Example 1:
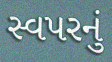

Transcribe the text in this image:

સ્વપરનું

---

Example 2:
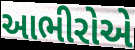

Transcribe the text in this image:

આભીરોએ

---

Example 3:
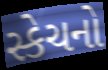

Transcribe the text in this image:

સ્કેચનો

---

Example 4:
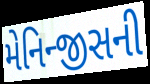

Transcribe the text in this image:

મેનિન્જીસની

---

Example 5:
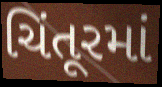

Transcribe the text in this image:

ચિંતૂરમાં